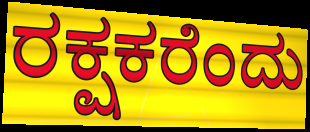
ರಕ್ಷಕರೆಂದು